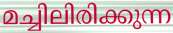
മച്ചിലിരിക്കുന്ന